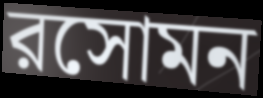
রসোমন